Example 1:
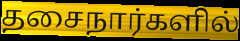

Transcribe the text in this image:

தசைநார்களில்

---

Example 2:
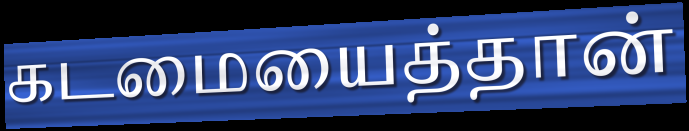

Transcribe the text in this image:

கடமையைத்தான்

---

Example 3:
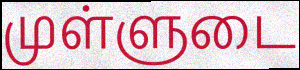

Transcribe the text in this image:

முள்ளுடை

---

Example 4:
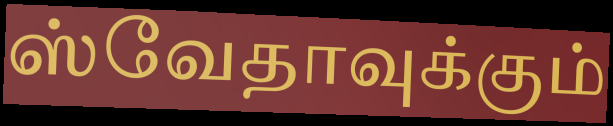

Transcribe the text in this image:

ஸ்வேதாவுக்கும்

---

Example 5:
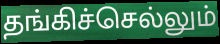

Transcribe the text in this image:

தங்கிச்செல்லும்